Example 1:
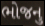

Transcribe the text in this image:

ભોજનુ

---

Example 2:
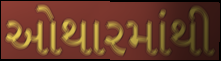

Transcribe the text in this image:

ઓથારમાંથી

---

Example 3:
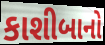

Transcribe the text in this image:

કાશીબાનો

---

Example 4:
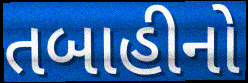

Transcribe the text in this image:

તબાહીનો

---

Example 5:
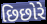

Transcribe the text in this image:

છિછોરે